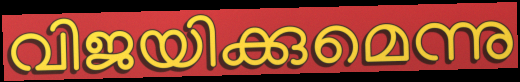
വിജയിക്കുമെന്നു